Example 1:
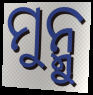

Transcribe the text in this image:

ମୁନ୍ମୁ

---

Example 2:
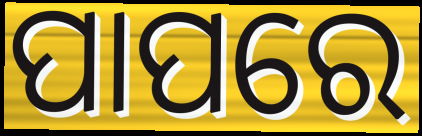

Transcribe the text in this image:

ପାପରେ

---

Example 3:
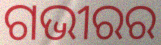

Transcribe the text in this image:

ଗଭୀରର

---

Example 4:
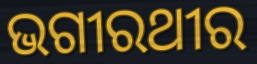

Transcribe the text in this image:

ଭଗୀରଥୀର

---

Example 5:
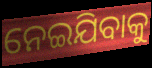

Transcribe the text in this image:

ନେଇଯିବାକୁ